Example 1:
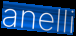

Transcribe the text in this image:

anelli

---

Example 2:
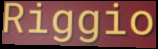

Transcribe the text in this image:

Riggio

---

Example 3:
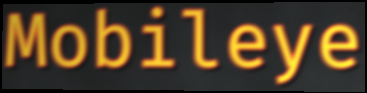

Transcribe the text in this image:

Mobileye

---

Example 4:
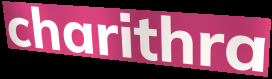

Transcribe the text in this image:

charithra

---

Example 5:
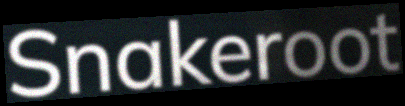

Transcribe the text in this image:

Snakeroot